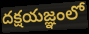
దక్షయజ్ఞంలో